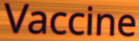
Vaccine